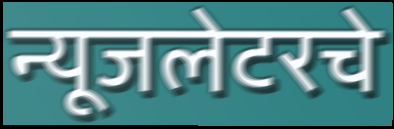
न्यूजलेटरचे